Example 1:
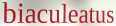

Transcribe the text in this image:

biaculeatus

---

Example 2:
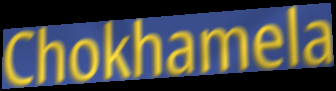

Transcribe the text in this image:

Chokhamela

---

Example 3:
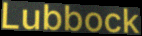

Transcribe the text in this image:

Lubbock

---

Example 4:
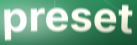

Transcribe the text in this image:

preset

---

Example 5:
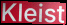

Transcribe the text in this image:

Kleist